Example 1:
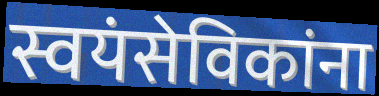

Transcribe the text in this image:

स्वयंसेविकांना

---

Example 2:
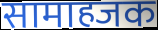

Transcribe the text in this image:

सामाहजक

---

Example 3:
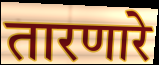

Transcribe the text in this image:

तारणारे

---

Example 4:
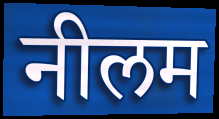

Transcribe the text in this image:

नीलम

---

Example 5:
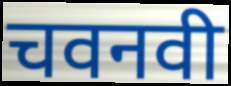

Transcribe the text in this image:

चवनवी